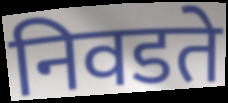
निवडते